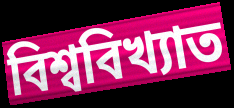
বিশ্ববিখ্যাত